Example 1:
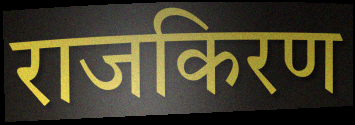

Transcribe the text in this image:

राजकिरण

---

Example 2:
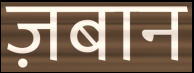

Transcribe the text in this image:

ज़बान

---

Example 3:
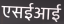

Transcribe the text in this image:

एसईआई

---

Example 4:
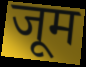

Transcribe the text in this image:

जूम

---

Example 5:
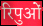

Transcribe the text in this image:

रिपुओं